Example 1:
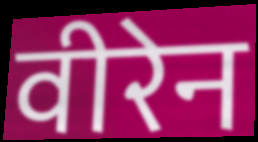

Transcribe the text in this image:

वीरेन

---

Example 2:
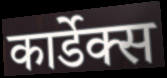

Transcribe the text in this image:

कार्डेक्स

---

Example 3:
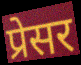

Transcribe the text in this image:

प्रेसर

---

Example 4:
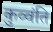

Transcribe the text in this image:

कुव्वंति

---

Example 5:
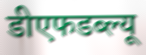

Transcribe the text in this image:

डीएफडब्ल्यू